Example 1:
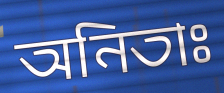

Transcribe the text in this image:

অনিতাঃ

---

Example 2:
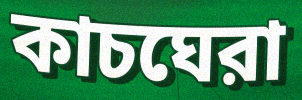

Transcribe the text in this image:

কাচঘেরা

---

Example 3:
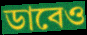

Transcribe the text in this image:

ডাবেও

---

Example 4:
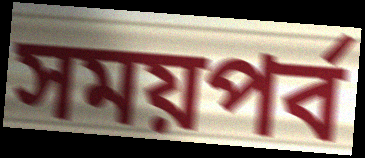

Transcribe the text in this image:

সময়পর্ব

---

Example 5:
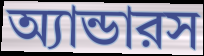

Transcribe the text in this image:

অ্যান্ডারস